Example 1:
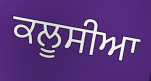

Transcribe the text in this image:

ਕਲੂਸੀਆ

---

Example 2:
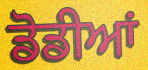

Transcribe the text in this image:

ਡੋਡੀਆਂ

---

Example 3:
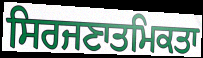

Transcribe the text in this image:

ਸਿਰਜਣਾਤਮਿਕਤਾ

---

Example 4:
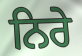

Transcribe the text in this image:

ਨਿਰੇ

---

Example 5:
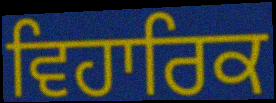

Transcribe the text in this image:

ਵਿਹਾਰਿਕ